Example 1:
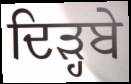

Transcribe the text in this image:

ਦਿੜ੍ਹਬੇ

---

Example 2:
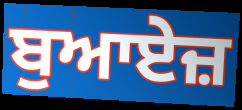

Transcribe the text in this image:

ਬੁਆਏਜ਼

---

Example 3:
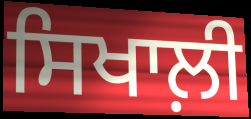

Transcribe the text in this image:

ਸਿਖਾਲ਼ੀ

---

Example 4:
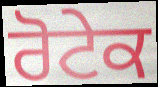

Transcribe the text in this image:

ਰੋਟੇਕ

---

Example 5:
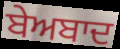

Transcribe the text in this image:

ਬੇਅਬਾਦ